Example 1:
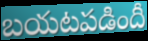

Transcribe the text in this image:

బయటపడిందీ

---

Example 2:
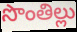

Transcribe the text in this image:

సొంతిల్లు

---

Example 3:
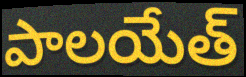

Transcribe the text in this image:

పాలయేత్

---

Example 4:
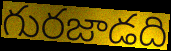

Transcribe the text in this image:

గురజాడది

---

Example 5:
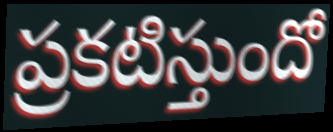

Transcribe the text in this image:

ప్రకటిస్తుందో